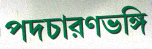
পদচারণভঙ্গি